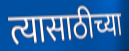
त्यासाठीच्या